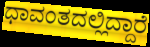
ಧಾವಂತದಲ್ಲಿದ್ದಾರೆ